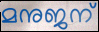
മനുജന്